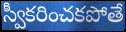
స్వీకరించకపోతే